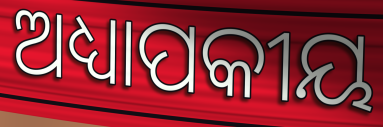
ଅଧ୍ୟାପକୀୟ